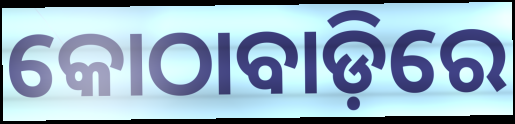
କୋଠାବାଡ଼ିରେ